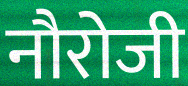
नौरोजी